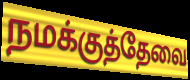
நமக்குத்தேவை